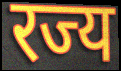
रज्य